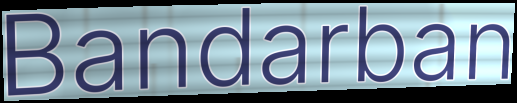
Bandarban